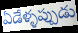
ఏడేళ్ళప్పుడు